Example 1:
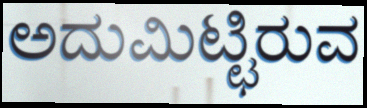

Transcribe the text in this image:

ಅದುಮಿಟ್ಟಿರುವ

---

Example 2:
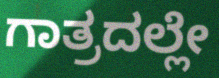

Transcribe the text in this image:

ಗಾತ್ರದಲ್ಲೇ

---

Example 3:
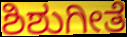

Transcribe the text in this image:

ಶಿಶುಗೀತೆ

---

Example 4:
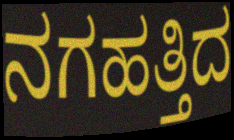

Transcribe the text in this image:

ನಗಹತ್ತಿದ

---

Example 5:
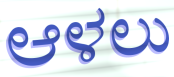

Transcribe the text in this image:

ಆಳಲು